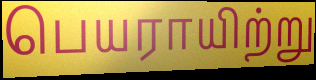
பெயராயிற்று